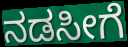
ನಡಸೀಗೆ